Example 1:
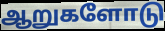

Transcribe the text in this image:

ஆறுகளோடு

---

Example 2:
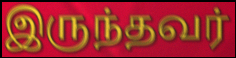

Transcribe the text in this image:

இருந்தவர்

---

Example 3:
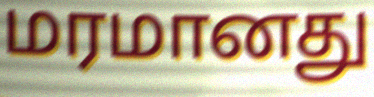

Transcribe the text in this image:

மரமானது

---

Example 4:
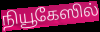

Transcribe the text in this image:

நியூகேஸில்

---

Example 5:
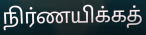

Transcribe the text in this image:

நிர்ணயிக்கத்